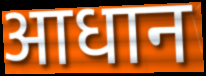
आधान